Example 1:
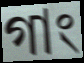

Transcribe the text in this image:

গাং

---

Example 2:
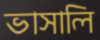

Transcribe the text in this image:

ভাসালি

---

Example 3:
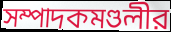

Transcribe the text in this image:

সম্পাদকমণ্ডলীর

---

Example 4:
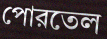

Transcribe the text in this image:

পোরতেল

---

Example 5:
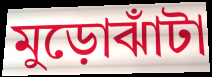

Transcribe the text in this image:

মুড়োঝাঁটা